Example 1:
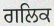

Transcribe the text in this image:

ਗਲਿਕ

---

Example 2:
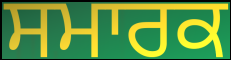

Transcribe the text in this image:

ਸਮਾਰਕ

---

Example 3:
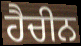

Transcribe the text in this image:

ਹੈਚੀਨ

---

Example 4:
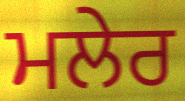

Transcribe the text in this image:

ਮਲੇਰ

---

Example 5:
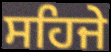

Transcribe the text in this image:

ਸਹਿਜੇ